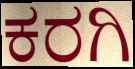
ಕರಗಿ